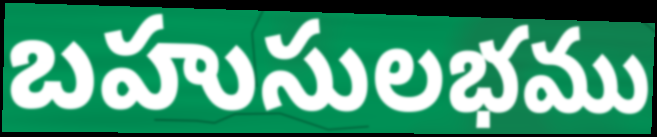
బహుసులభము